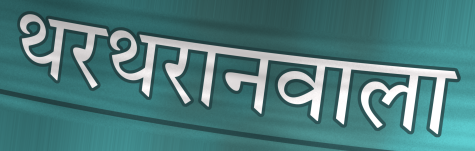
थरथरानवाला